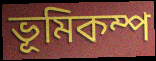
ভূমিকম্প